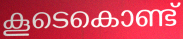
കൂടെകൊണ്ട്